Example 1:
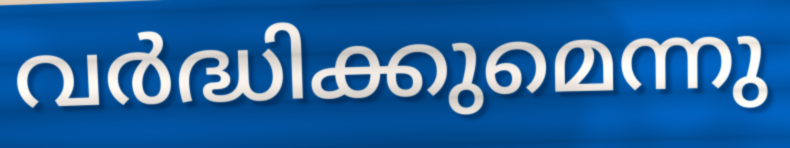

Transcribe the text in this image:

വർദ്ധിക്കുമെന്നു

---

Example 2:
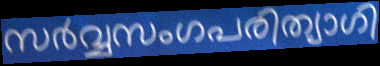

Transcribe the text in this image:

സർവ്വസംഗപരിത്യാഗി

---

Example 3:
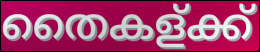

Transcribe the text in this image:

തൈകള്ക്ക്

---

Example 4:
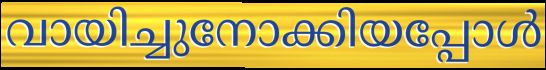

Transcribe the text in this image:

വായിച്ചുനോക്കിയപ്പോൾ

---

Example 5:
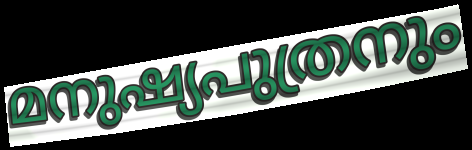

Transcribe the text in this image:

മനുഷ്യപുത്രനും